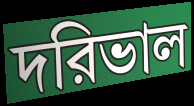
দরিভাল